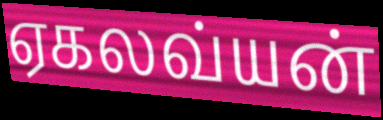
ஏகலவ்யன்